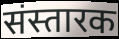
संस्तारक